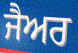
ਜੈਅਰ